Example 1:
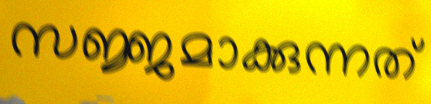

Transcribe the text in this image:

സജ്ജമാക്കുന്നത്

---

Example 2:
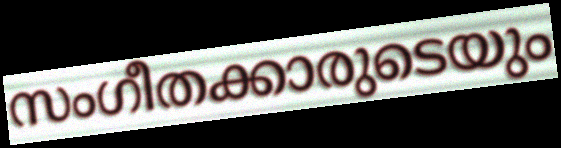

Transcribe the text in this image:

സംഗീതക്കാരുടെയും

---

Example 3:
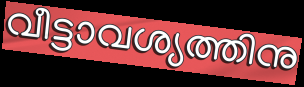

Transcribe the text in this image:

വീട്ടാവശ്യത്തിനു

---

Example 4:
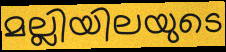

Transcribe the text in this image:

മല്ലിയിലയുടെ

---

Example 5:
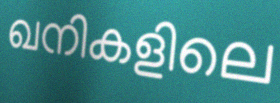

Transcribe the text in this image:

ഖനികളിലെ